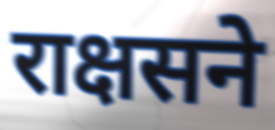
राक्षसने